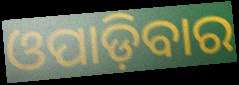
ଓପାଡ଼ିବାର